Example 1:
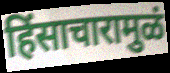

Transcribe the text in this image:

हिंसाचारामुळं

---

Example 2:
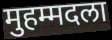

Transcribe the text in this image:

मुहम्मदला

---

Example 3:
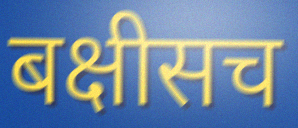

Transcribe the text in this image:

बक्षीसच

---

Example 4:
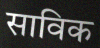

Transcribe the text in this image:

साविक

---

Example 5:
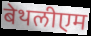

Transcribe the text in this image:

बेथलीएम